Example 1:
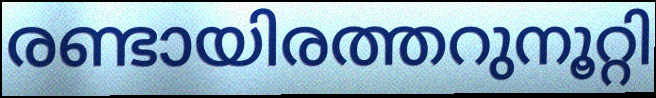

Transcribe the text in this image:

രണ്ടായിരത്തറുനൂറ്റി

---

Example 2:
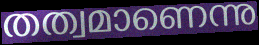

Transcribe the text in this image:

തത്വമാണെന്നു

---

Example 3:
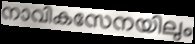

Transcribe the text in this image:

നാവികസേനയിലും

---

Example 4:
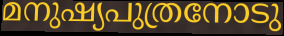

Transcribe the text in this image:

മനുഷ്യപുത്രനോടു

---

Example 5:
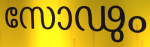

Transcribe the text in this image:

സോഢും